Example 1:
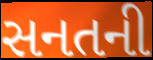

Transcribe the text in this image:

સનતની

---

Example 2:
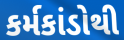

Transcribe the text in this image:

કર્મકાંડોથી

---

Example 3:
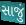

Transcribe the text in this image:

સાજું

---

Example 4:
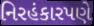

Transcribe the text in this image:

નિરહંકારપણે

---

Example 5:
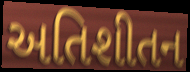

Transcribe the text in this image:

અતિશીતન